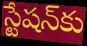
స్టేషన్‍కు